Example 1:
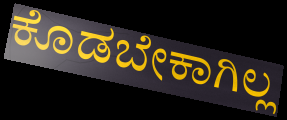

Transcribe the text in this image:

ಕೊಡಬೇಕಾಗಿಲ್ಲ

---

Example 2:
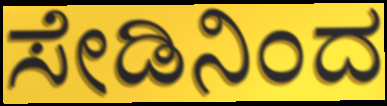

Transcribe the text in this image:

ಸೇಡಿನಿಂದ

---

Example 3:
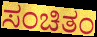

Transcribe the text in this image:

ಸಂಚಿತಂ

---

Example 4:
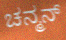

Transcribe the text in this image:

ಚನ್ಮನ್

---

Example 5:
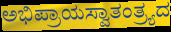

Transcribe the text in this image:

ಅಭಿಪ್ರಾಯಸ್ವಾತಂತ್ರ್ಯದ